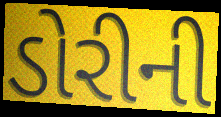
ડોરીની